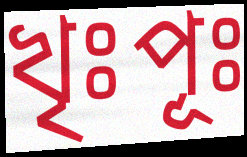
খৃঃপূঃ